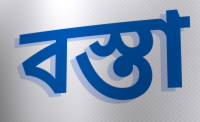
বস্তা